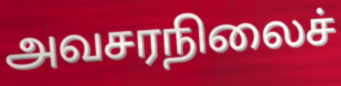
அவசரநிலைச்